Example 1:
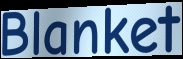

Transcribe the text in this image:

Blanket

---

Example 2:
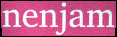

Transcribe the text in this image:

nenjam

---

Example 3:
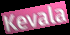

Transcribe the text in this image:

Kevala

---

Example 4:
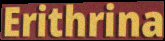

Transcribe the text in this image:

Erithrina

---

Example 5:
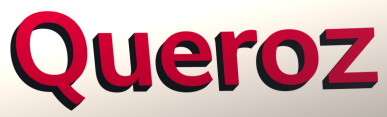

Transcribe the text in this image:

Queroz